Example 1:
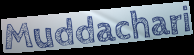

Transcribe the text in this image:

Muddachari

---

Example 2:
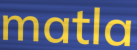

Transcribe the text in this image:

matla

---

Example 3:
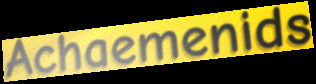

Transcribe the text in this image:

Achaemenids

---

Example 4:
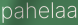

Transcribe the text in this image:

pahelaa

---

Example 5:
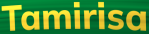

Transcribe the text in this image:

Tamirisa